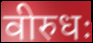
वीरुधः